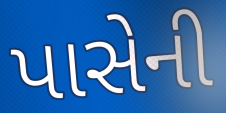
પાસેની